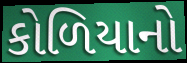
કોળિયાનો